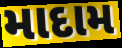
માદામ